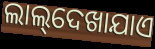
ଲାଲ୍‌ଦେଖାଯାଏ